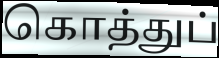
கொத்துப்